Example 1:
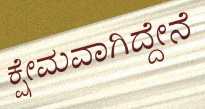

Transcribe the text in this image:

ಕ್ಷೇಮವಾಗಿದ್ದೇನೆ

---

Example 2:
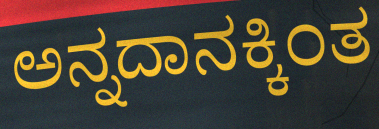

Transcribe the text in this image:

ಅನ್ನದಾನಕ್ಕಿಂತ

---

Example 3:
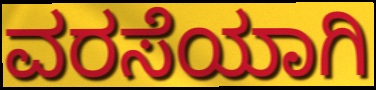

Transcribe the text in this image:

ವರಸೆಯಾಗಿ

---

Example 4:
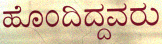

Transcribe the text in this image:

ಹೊಂದಿದ್ದವರು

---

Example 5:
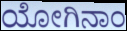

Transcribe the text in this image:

ಯೋಗಿನಾಂ